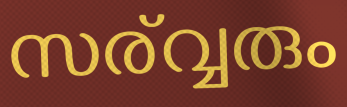
സര്വ്വരും